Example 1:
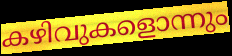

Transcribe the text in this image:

കഴിവുകളൊന്നും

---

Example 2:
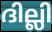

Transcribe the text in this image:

ദില്ലി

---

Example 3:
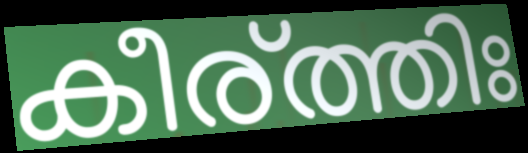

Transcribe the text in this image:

കീര്ത്തിഃ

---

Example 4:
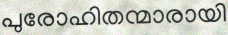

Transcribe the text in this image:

പുരോഹിതന്മാരായി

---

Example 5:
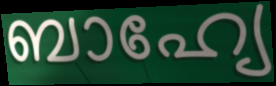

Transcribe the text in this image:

ബാഹ്യേ